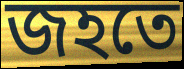
জহতে